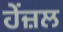
ਹੇਂਜ਼ਲ